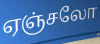
ஏஞ்சலோ